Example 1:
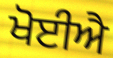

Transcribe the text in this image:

ਖੋਈਐ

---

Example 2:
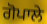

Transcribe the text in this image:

ਗੋਪਾਲੇ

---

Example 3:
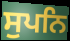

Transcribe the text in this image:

ਸੁਪਨਿ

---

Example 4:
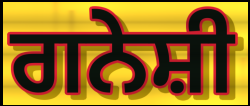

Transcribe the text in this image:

ਗਨੇਸ਼ੀ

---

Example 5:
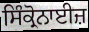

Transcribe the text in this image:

ਸਿੰਕ੍ਰੋਨਾਈਜ਼